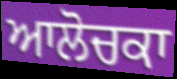
ਆਲੋਚਕਾ